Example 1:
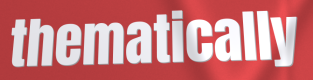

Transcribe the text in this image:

thematically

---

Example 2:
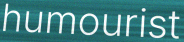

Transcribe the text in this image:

humourist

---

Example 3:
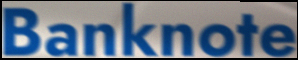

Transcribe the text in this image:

Banknote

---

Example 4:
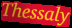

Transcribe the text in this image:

Thessaly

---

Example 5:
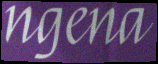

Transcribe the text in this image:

ngena